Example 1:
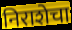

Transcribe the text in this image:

निराशेचा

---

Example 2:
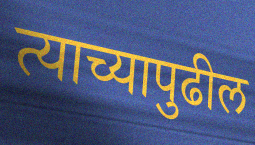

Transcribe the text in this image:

त्याच्यापुढील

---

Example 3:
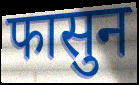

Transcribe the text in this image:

फासुन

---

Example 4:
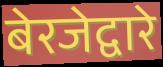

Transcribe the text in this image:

बेरजेद्वारे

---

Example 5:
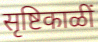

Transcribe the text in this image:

सृष्टिकाळीं